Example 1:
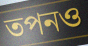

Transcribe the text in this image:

তপনও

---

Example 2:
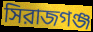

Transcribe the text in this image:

সিরাজগঞ্জ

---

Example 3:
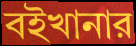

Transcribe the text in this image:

বইখানার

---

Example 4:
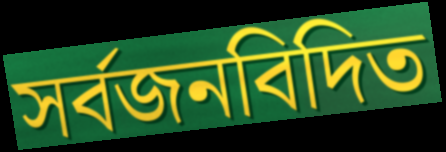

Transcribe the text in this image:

সর্বজনবিদিত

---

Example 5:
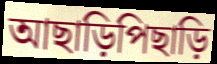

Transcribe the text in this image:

আছাড়িপিছাড়ি